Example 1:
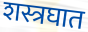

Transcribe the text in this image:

शस्त्रघात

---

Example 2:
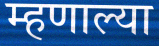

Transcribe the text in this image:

म्हणाल्या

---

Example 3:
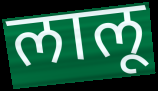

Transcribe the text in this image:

लालू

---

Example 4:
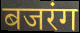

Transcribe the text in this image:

बजरंग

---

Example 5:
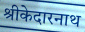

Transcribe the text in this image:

श्रीकेदारनाथ